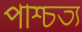
পাশ্চত্য